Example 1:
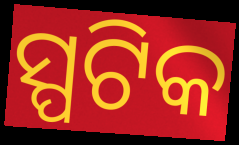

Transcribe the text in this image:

ସ୍ପଟିକ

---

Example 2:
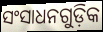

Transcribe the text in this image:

ସଂସାଧନଗୁଡ଼ିକ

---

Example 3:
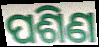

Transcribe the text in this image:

ପଶିଣ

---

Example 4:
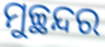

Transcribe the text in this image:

ମୁଚ୍ଛନ୍ଦର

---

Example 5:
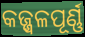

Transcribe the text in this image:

କଜ୍ଜ୍ୱଳପୂର୍ଣ୍ଣ